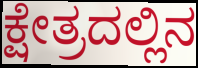
ಕ್ಷೇತ್ರದಲ್ಲಿನ